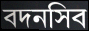
বদনসিব